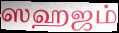
ஸஹஜம்